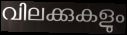
വിലക്കുകളും